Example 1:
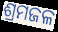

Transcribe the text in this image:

ଶ୍ରମଜଳ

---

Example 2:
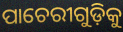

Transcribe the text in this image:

ପାଚେରୀଗୁଡ଼ିକୁ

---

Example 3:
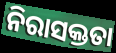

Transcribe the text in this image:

ନିରାସକ୍ତତା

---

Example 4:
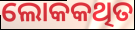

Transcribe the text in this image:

ଲୋକକଥିତ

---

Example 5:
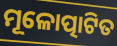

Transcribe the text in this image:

ମୂଳୋତ୍ପାଟିତ